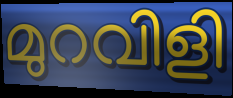
മുറവിളി